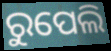
ରୁପେଲି